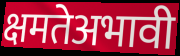
क्षमतेअभावी